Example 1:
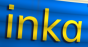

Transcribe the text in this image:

inka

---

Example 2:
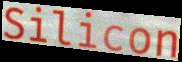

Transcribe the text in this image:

Silicon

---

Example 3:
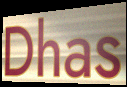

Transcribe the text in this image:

Dhas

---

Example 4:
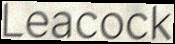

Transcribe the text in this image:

Leacock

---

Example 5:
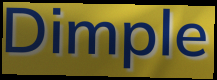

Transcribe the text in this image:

Dimple